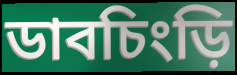
ডাবচিংড়ি